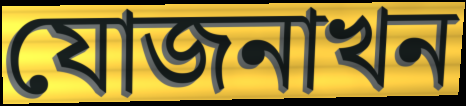
যোজনাখন